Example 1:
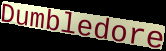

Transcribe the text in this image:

Dumbledore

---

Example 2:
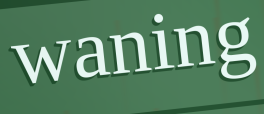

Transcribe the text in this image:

waning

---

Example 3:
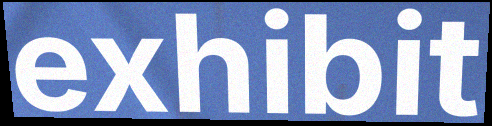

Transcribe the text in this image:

exhibit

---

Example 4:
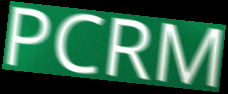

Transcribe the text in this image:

PCRM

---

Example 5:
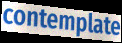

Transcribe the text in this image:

contemplate